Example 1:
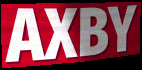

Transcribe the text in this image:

AXBY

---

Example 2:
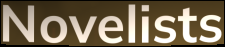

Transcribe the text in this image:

Novelists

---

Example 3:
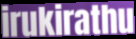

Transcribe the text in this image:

irukirathu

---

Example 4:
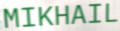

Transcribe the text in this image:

MIKHAIL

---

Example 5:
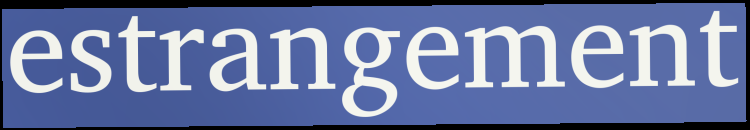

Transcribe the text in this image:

estrangement